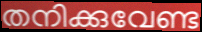
തനിക്കുവേണ്ട